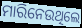
ମାରିନେଉଥିଲେ